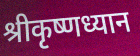
श्रीकृष्णध्यान